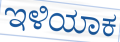
ಇಳಿಯಾಕ